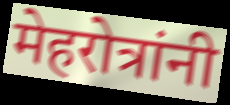
मेहरोत्रांनी